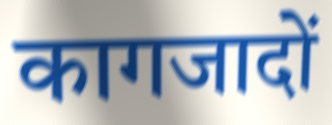
कागजादों